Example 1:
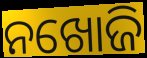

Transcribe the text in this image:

ନଖୋଜି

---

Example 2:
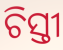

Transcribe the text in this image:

ଚିସ୍ତୀ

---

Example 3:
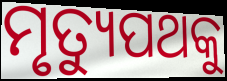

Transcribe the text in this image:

ମୃତ୍ୟୁପଥକୁ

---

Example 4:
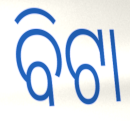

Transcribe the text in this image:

ବିଟା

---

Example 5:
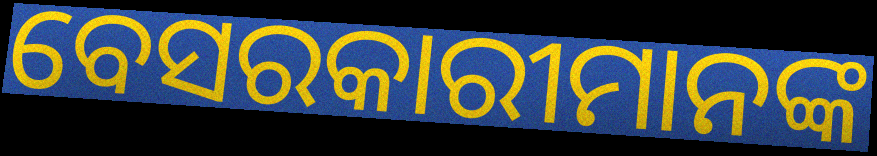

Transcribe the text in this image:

ବେସରକାରୀମାନଙ୍କ